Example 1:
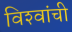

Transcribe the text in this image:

विश्वांची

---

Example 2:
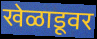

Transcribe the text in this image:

खेळाडूवर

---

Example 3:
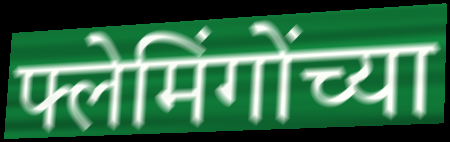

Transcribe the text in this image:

फ्लेमिंगोंच्या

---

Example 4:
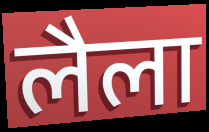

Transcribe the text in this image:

लैला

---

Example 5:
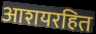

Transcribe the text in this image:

आशयरहित